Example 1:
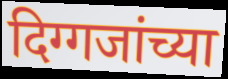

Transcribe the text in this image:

दिग्गजांच्या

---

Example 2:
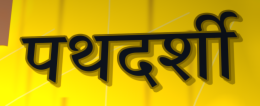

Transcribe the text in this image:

पथदर्शी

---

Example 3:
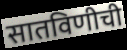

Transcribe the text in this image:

सातविणीची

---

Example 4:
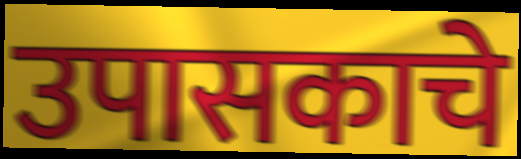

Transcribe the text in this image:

उपासकाचे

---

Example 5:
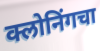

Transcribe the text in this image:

क्लोनिंगचा